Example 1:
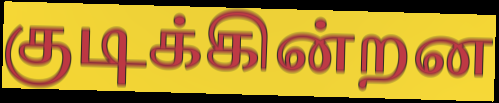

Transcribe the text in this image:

குடிக்கின்றன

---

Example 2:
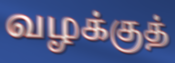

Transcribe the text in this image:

வழக்குத்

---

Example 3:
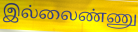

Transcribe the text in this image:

இல்லைண்ணு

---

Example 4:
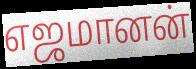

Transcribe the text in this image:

எஜமானன்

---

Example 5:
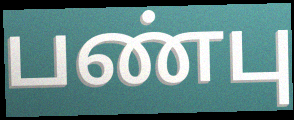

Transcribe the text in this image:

பண்பு